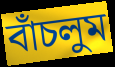
বাঁচলুম